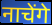
नाचेंगे